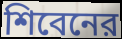
শিবেনের